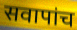
सवापांच